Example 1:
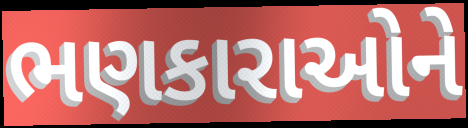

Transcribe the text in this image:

ભણકારાઓને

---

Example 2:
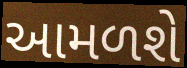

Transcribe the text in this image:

આમળશે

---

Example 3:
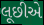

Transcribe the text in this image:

લૂછીએ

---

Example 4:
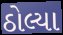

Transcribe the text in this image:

ઠોલ્યા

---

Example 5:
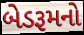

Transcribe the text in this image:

બેડરૂમનો